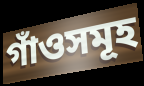
গাঁওসমূহ